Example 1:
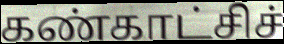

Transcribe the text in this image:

கண்காட்சிச்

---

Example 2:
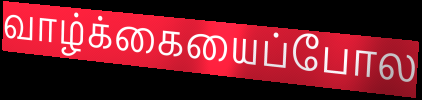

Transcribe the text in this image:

வாழ்க்கையைப்போல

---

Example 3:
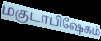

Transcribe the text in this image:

மகுடாபிஷேகம்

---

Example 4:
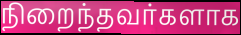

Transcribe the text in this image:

நிறைந்தவர்களாக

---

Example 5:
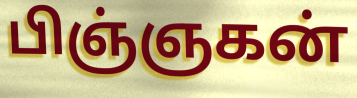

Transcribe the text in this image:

பிஞ்ஞகன்